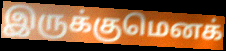
இருக்குமெனக்